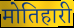
मोतिहारी